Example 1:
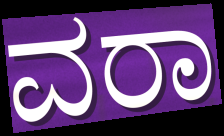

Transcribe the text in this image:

ವರಾ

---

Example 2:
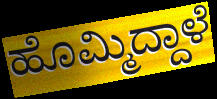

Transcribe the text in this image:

ಹೊಮ್ಮಿದ್ದಾಳೆ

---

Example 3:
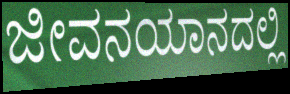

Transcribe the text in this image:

ಜೀವನಯಾನದಲ್ಲಿ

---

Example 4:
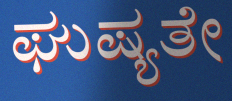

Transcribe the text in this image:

ಘುಷ್ಯತೇ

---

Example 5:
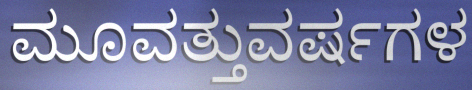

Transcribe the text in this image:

ಮೂವತ್ತುವರ್ಷಗಳ